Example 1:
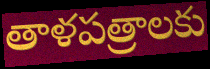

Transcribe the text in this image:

తాళపత్రాలకు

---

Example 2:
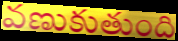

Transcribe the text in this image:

వణుకుతుంది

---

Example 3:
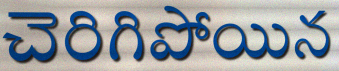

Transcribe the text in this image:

చెరిగిపోయిన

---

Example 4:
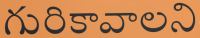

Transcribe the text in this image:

గురికావాలని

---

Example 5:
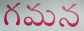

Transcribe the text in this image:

గమన